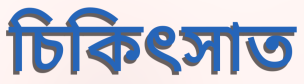
চিকিৎসাত